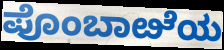
ಪೊಂಬಾೞೆಯ